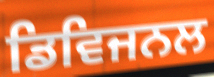
ਡਿਵਿਜਨਲ